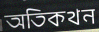
অতিকথন